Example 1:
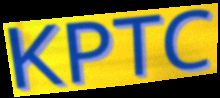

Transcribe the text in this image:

KPTC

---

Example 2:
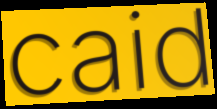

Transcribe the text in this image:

caid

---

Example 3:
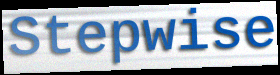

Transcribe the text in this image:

Stepwise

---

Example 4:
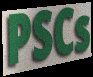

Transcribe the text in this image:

PSCs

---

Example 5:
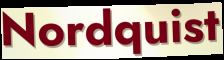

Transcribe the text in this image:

Nordquist